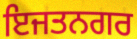
ਇਜਤਨਗਰ